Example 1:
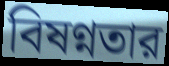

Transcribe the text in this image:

বিষণ্নতার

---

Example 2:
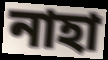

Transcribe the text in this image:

নাহা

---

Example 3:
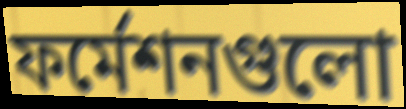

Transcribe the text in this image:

ফর্মেশনগুলো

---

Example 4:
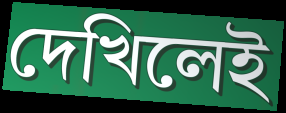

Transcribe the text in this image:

দেখিলেই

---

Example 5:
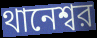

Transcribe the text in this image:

থানেশ্বর